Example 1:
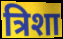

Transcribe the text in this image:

त्रिशा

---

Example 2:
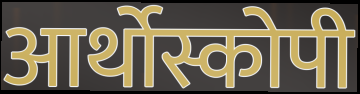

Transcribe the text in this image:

आर्थोस्कोपी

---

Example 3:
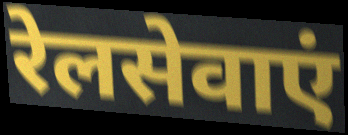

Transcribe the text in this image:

रेलसेवाएं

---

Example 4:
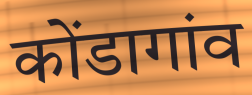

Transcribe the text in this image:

कोंडागांव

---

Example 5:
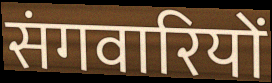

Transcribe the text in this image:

संगवारियों